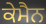
ਕੇਮੈਨ